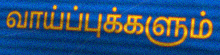
வாய்ப்புக்களும்